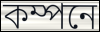
কম্পনে